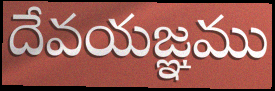
దేవయజ్ఞము